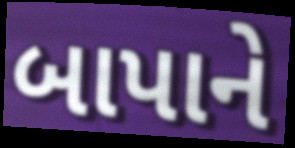
બાપાને